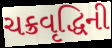
ચક્રવૃદ્ધિની